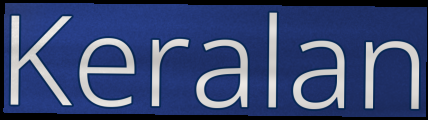
Keralan